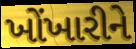
ખોંખારીને